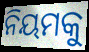
ନିୟମକୁ